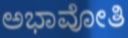
ಅಭಾವೋತಿ